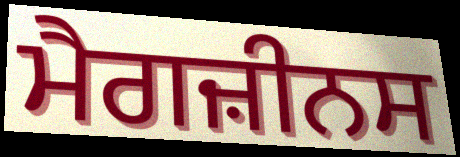
ਮੈਗਜ਼ੀਨਸ